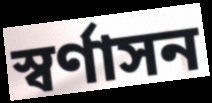
স্বর্ণাসন